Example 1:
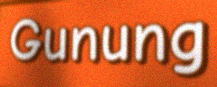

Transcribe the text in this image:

Gunung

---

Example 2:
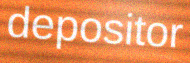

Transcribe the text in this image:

depositor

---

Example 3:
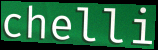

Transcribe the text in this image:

chelli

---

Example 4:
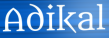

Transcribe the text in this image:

Adikal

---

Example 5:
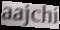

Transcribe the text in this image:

aajchi